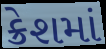
ક્રેશમાં